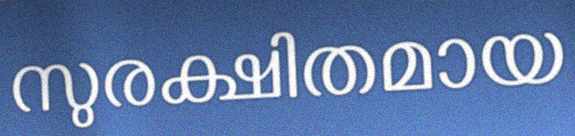
സുരക്ഷിതമായ